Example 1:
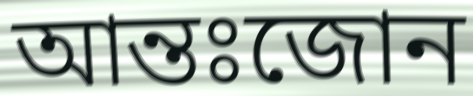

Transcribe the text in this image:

আন্তঃজোন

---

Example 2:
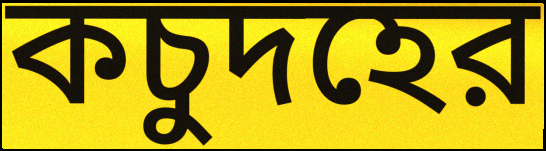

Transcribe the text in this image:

কচুদহের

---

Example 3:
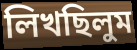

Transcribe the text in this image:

লিখছিলুম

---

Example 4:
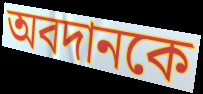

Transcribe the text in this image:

অবদানকে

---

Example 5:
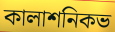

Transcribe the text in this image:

কালাশনিকভ